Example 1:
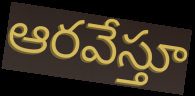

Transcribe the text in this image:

ఆరవేస్తూ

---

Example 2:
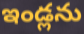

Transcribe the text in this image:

ఇండ్లను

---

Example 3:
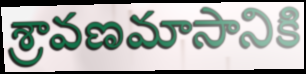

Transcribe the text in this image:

శ్రావణమాసానికి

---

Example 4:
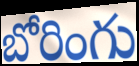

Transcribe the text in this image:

బోరింగు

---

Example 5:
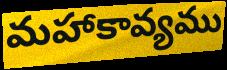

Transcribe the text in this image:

మహాకావ్యము